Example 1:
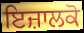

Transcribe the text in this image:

ਇਜ਼ਾਲਕੋ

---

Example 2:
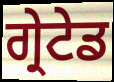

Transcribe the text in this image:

ਗ੍ਰੇਟੇਡ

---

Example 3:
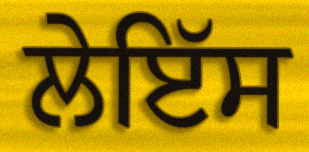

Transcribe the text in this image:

ਲੇਇੱਸ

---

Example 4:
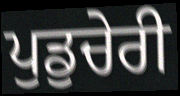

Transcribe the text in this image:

ਪੁਡੁਚੇਰੀ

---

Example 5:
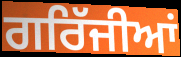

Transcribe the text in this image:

ਗਰਿੱਜੀਆਂ